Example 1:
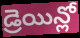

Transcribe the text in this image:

డ్రెయిన్లో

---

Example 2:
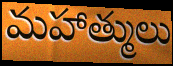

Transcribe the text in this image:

మహాత్ములు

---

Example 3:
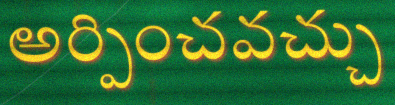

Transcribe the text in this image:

అర్పించవచ్చు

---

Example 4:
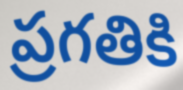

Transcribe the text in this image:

ప్రగతికి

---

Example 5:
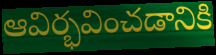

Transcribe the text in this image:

ఆవిర్భవించడానికి